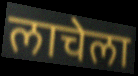
लाचेला